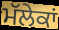
ਮੱਲੇਕਾਂ